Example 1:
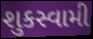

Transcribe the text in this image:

શુકસ્વામી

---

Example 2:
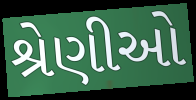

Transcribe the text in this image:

શ્રેણીઓ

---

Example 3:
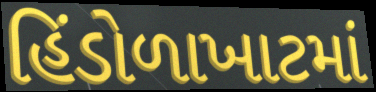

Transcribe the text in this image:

હિંડોળાખાટમાં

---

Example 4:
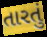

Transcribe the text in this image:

તારતું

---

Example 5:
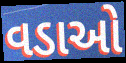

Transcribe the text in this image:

વડાઓ